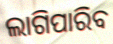
ଲାଗିପାରିବ